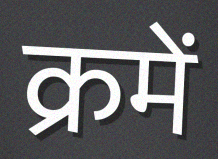
क्रमें